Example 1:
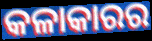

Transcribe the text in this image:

କଳାକାରର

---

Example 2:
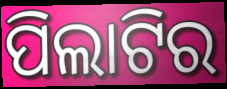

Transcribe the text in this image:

ପିଲାଟିର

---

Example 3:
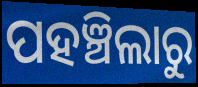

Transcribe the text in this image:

ପହଞ୍ଚିଲାରୁ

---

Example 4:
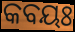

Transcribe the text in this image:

କବୟଃ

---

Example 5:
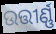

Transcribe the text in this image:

ଉତ୍ତୀର୍ଣ୍ଣ